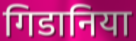
गिडानिया